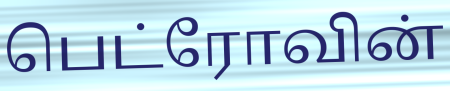
பெட்ரோவின்